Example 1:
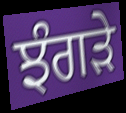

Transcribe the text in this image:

ਝੰਗੜੇ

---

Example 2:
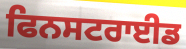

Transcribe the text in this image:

ਫਿਨਸਟਰਾਈਡ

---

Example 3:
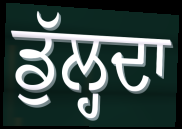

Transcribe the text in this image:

ਡੁੱਲ੍ਹਦਾ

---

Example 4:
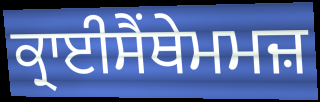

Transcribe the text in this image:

ਕ੍ਰਾਈਸੈਂਥੇਮਮਜ਼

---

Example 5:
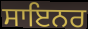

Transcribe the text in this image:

ਸਾਇਨਰ